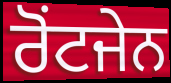
ਰੋਂਟਜੇਨ